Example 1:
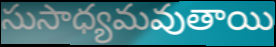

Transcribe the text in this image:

సుసాధ్యమవుతాయి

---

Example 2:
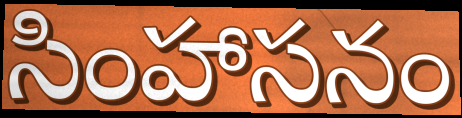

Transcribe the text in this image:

సింహాసనం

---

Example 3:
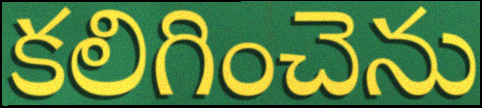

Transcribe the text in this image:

కలిగించెను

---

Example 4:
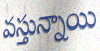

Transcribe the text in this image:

వస్తున్నాయి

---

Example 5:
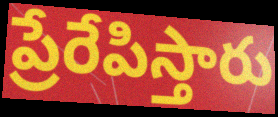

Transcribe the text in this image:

ప్రేరేపిస్తారు